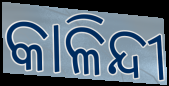
କାଳିନ୍ଦୀ